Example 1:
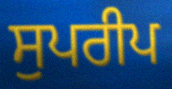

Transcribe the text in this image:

ਸੁਪਰੀਪ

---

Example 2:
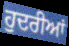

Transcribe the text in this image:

ਹੁਦਰੀਆਂ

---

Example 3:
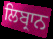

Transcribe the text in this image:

ਲਿਬ੍ਰਾਨ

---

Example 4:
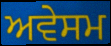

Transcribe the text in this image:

ਅਵੇਸਮ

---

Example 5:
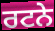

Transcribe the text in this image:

ਰਟਨੇ